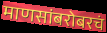
माणसांबरोबरचं